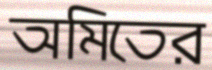
অমিতের